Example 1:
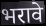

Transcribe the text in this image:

भरावे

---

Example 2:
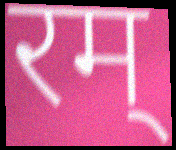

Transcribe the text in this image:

रम्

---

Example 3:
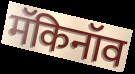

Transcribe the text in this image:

मॅकिनॉव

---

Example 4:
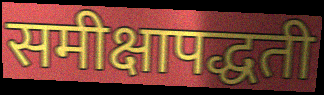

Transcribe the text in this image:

समीक्षापद्धती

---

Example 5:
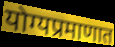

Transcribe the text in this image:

योग्यप्रमाणात